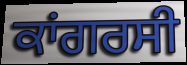
ਕਾਂਗਰਸੀ